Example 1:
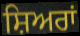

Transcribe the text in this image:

ਸ਼ਿਅਰਾਂ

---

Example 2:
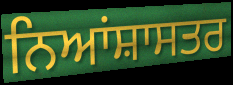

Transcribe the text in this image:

ਨਿਆਂਸ਼ਾਸਤਰ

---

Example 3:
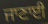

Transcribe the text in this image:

ਜਾਣਾਈ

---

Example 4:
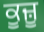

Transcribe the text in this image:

ਕੂਜ਼ੂ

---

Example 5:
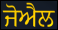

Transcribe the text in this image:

ਜੋਐਲ